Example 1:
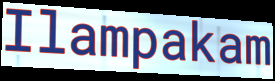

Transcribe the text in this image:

Ilampakam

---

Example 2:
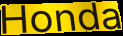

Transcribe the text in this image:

Honda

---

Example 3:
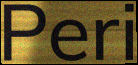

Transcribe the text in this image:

Peri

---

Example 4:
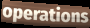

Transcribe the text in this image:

operations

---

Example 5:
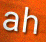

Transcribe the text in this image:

ah